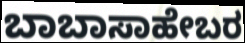
ಬಾಬಾಸಾಹೇಬರ